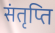
संतृप्ति